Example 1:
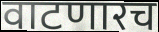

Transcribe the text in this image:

वाटणारच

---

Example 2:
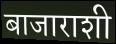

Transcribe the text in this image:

बाजाराशी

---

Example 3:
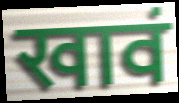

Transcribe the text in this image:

खावं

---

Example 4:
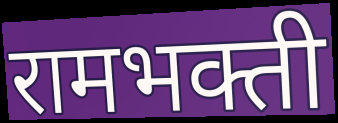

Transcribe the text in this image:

रामभक्ती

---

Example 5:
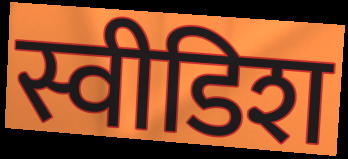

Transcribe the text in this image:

स्वीडिश